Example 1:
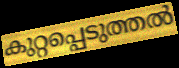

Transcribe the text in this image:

കുറ്റപ്പെടുത്തൽ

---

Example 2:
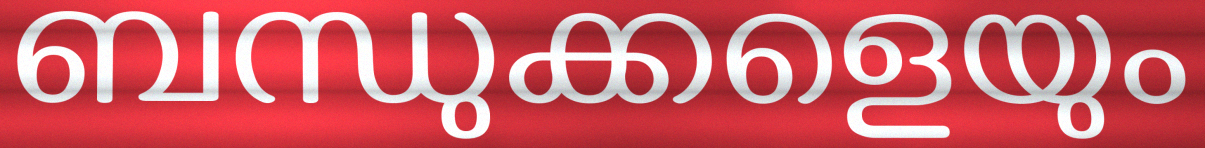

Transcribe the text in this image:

ബന്ധുക്കളെയും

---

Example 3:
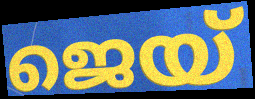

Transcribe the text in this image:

ജെയ്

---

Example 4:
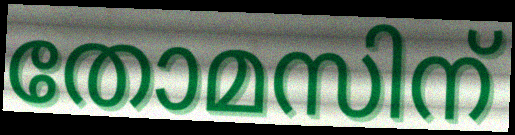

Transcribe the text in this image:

തോമസിന്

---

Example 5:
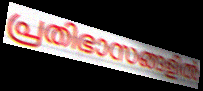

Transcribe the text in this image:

പ്രതിഭാസങ്ങളിൽ